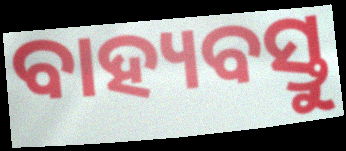
ବାହ୍ୟବସ୍ତୁ